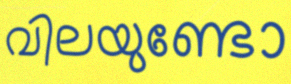
വിലയുണ്ടോ